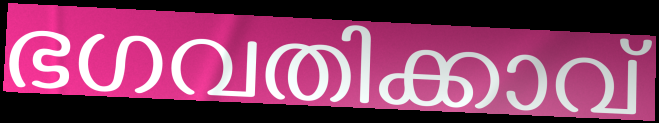
ഭഗവതിക്കാവ്